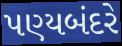
પણ્યબંદરે